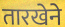
तारखेने